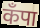
कँपा